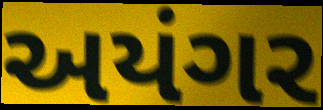
અયંગર